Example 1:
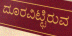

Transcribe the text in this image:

ದೂರವಿಟ್ಟಿರುವ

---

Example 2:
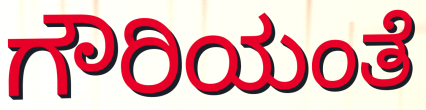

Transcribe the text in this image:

ಗೌರಿಯಂತೆ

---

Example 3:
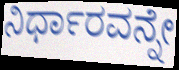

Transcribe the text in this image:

ನಿರ್ಧಾರವನ್ನೇ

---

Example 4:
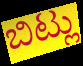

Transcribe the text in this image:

ಬಿಟ್ಲು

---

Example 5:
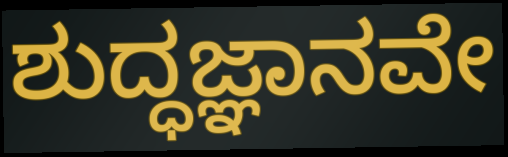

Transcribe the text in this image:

ಶುದ್ಧಜ್ಞಾನವೇ